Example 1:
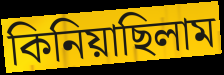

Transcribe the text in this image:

কিনিয়াছিলাম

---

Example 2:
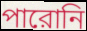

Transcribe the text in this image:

পারোনি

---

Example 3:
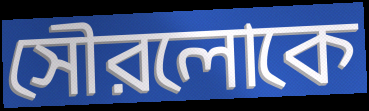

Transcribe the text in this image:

সৌরলোকে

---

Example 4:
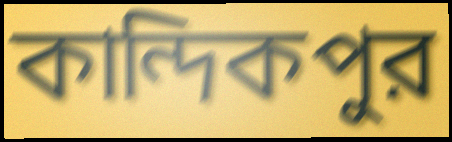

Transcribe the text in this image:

কান্দিকপুর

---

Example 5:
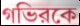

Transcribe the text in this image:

গভিরকে